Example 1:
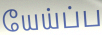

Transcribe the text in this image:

யேய்ப்ப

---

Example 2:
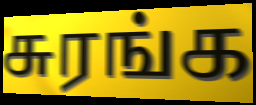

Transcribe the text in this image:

சுரங்க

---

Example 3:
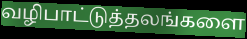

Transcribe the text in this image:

வழிபாட்டுத்தலங்களை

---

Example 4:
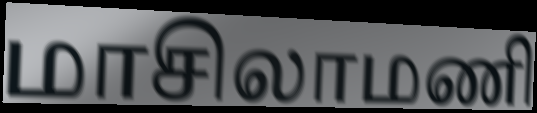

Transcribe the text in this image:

மாசிலாமணி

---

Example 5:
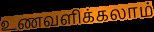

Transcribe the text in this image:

உணவளிக்கலாம்